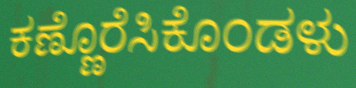
ಕಣ್ಣೊರೆಸಿಕೊಂಡಳು